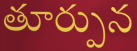
తూర్పున